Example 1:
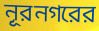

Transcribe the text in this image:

নূরনগরের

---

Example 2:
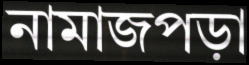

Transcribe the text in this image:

নামাজপড়া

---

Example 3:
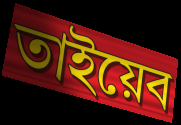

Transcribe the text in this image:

তাইয়েব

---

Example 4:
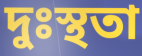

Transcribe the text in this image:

দুঃস্থতা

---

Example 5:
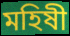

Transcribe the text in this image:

মহিষী